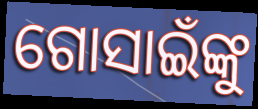
ଗୋସାଇଁଙ୍କୁ